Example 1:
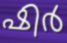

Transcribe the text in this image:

ഷിർ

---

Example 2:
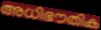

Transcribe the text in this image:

അധിഭൗതിക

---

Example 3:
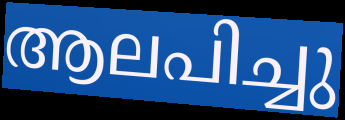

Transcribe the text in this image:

ആലപിച്ചു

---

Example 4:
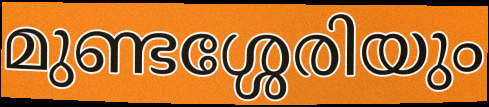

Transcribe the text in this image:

മുണ്ടശ്ശേരിയും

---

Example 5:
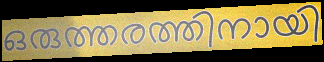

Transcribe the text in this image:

ഒരുത്തരത്തിനായി